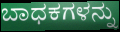
ಬಾಧಕಗಳನ್ನು